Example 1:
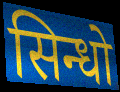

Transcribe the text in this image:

सिन्धो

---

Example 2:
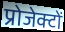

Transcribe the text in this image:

प्रोजेक्टों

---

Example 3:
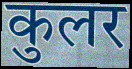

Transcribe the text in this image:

कुलर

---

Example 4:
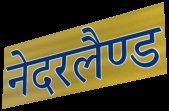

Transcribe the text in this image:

नेदरलैण्ड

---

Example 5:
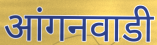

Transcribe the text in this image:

आंगनवाडी